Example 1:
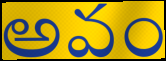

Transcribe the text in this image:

అవం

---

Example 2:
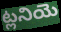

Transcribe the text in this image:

ట్లనియె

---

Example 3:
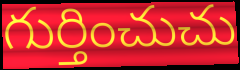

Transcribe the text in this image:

గుర్తించుచు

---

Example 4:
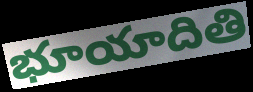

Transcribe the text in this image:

భూయాదితి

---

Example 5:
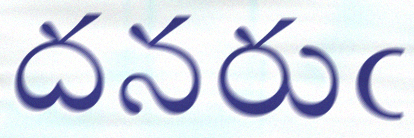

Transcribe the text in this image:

దనరుఁ